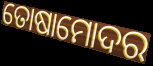
ତୋଷାମୋଦର